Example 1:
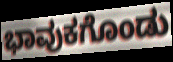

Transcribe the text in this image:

ಭಾವುಕಗೊಂಡು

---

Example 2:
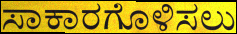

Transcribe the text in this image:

ಸಾಕಾರಗೊಳಿಸಲು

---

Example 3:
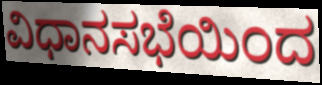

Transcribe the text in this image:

ವಿಧಾನಸಭೆಯಿಂದ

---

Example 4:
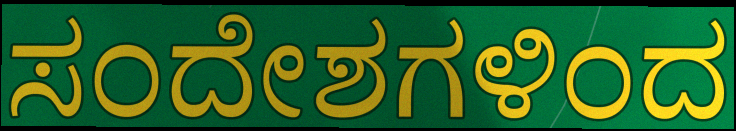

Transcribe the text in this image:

ಸಂದೇಶಗಳಿಂದ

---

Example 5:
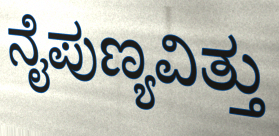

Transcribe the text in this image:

ನೈಪುಣ್ಯವಿತ್ತು